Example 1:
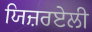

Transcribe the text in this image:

ਯਿਜ਼ਰਏਲੀ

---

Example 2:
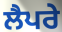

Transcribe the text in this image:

ਲੈਪਰੇ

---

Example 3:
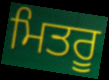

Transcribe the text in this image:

ਮਿਤਰੂ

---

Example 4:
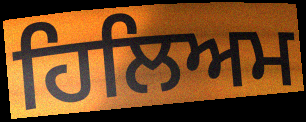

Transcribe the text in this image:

ਹਿਲਿਅਮ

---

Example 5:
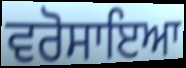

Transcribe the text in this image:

ਵਰੋਸਾਇਆ